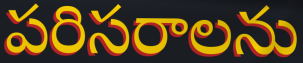
పరిసరాలను